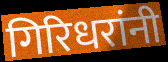
गिरिधरांनी